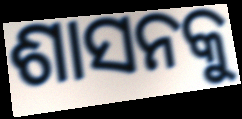
ଶାସନକୁ